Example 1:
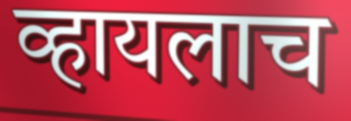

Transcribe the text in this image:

व्हायलाच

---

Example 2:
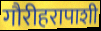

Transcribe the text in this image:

गौरीहरापाशी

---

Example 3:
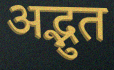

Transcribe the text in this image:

अद्भुत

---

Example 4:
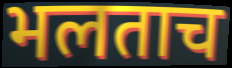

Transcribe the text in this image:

भलताच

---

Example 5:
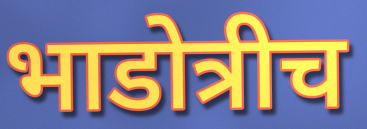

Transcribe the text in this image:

भाडोत्रीच